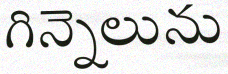
గిన్నెలును